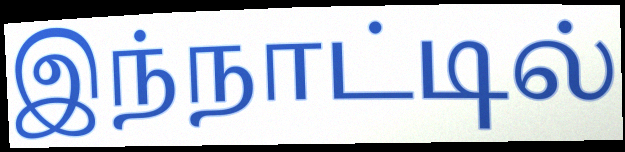
இந்நாட்டில்